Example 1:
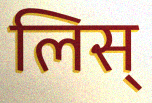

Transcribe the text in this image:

लिस्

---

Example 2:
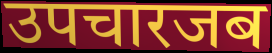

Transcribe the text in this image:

उपचारजब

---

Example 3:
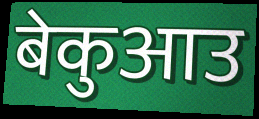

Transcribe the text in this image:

बेकुआउ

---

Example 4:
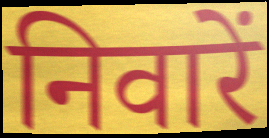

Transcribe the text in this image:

निवारें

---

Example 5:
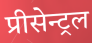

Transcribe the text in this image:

प्रीसेन्ट्रल